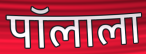
पॉलाला